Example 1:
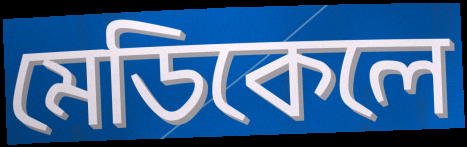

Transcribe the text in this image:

মেডিকেলে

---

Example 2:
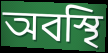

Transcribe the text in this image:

অবস্থি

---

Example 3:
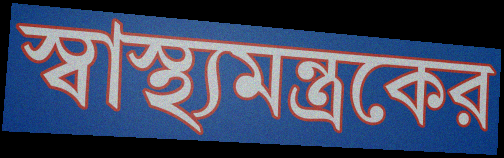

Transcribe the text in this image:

স্বাস্থ্যমন্ত্রকের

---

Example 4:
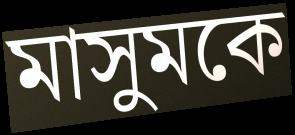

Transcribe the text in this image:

মাসুমকে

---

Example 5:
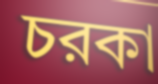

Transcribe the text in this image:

চরকা